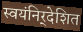
स्वयंनिर्देशित